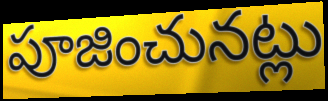
పూజించునట్లు